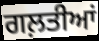
ਗਲ਼ਤੀਆਂ